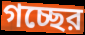
গচ্ছের